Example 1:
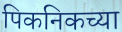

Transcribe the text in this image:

पिकनिकच्या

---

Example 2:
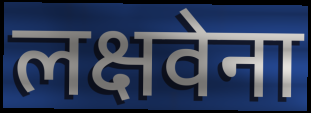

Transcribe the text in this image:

लक्षवेना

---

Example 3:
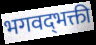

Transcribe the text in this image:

भगवद्‌भक्ती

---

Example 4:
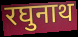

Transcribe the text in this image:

रघुनाथ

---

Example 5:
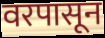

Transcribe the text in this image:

वरपासून